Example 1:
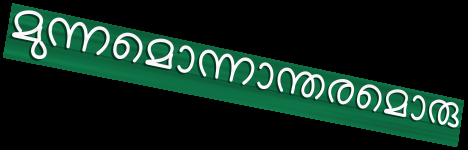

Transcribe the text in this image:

മുന്നമൊന്നാന്തരമൊരു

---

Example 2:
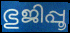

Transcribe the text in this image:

ഭുജിപ്പൂ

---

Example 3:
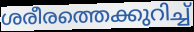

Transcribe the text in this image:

ശരീരത്തെക്കുറിച്ച്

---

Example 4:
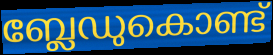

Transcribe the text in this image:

ബ്ലേഡുകൊണ്ട്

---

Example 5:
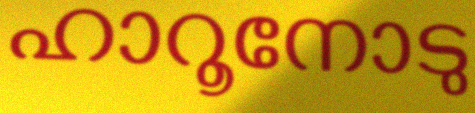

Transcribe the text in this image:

ഹാറൂനോടു